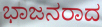
ಭಾಜನರಾದ